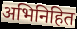
अभिनिहित